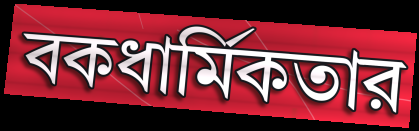
বকধার্মিকতার